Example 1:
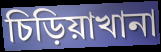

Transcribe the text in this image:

চিড়িয়াখানা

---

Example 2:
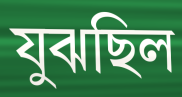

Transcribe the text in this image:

যুঝছিল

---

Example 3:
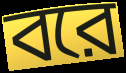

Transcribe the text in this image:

বরে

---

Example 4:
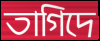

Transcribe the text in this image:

তাগিদে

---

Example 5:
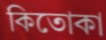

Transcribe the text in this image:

কিতোকা